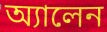
অ্যালেন